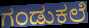
ಗಂಡುಕಲೆ